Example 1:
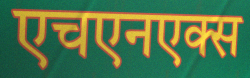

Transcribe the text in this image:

एचएनएक्स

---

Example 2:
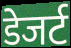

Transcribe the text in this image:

डेजर्ट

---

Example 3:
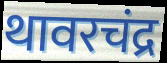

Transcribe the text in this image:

थावरचंद्र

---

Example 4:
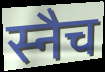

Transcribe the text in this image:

स्नैच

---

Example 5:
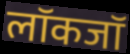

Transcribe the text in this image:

लॉकजॉ